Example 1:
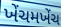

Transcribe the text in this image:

ખેંચમખેંચ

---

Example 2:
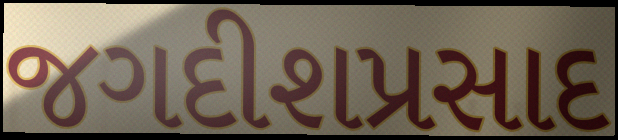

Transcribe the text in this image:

જગદીશપ્રસાદ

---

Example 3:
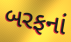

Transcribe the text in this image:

બરફનાં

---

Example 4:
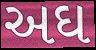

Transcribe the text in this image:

અઘ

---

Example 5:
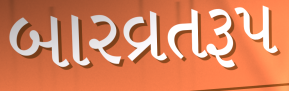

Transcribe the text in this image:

બારવ્રતરૂપ